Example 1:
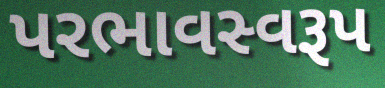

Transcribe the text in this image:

પરભાવસ્વરૂપ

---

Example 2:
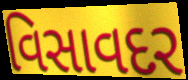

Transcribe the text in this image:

વિસાવદર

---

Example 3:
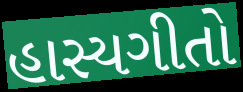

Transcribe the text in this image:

હાસ્યગીતો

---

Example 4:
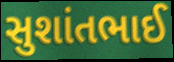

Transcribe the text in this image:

સુશાંતભાઈ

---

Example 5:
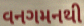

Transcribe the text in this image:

વનગમનથી